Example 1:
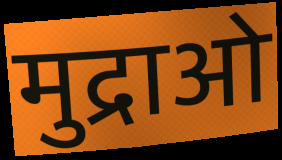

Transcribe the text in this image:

मुद्राओ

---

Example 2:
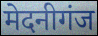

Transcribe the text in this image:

मेदनीगंज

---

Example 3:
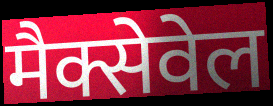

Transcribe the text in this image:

मैक्सेवेल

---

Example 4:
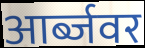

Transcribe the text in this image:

आर्ब्जवर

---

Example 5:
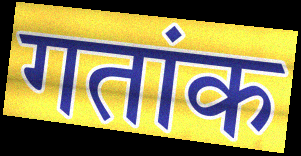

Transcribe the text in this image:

गतांक